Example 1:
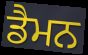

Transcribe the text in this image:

ਡੈਮਨ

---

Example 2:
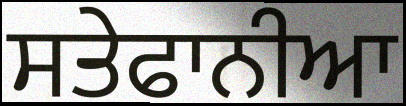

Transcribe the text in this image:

ਸਤੇਫਾਨੀਆ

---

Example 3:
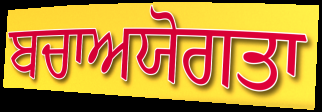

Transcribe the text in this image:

ਬਚਾਅਯੋਗਤਾ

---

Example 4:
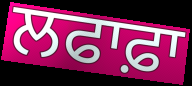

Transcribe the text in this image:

ਲਫਾਫ਼ਾ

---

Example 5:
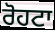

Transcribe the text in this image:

ਰੋਹਟਾ